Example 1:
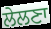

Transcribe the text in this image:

ਲੇਲਣਾ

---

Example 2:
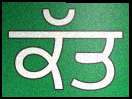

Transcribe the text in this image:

ਕੱਤ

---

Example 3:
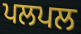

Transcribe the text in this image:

ਪਲਪਲ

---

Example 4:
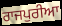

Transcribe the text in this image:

ਰਾਜਪੁਰੀਆ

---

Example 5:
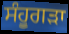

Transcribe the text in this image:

ਸੰਹੂਗੜਾ